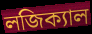
লজিক্যাল